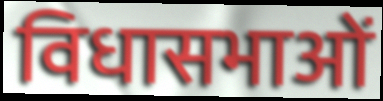
विधासभाओं